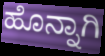
ಹೊನ್ನಾಗಿ